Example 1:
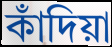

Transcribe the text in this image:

কাঁদিয়া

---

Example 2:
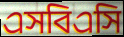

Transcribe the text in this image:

এসবিএসি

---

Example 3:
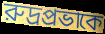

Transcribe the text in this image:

রুদ্রপ্রভাকে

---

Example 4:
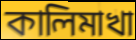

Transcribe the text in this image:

কালিমাখা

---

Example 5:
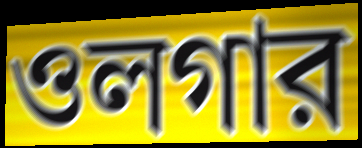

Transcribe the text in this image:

ওলগার